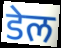
डेल